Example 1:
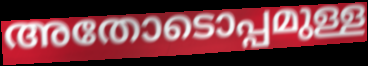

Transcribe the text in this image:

അതോടൊപ്പമുള്ള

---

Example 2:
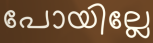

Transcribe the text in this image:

പോയില്ലേ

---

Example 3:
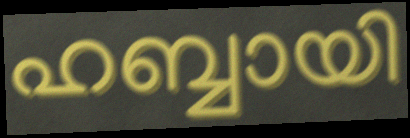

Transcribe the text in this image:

ഹബ്ബായി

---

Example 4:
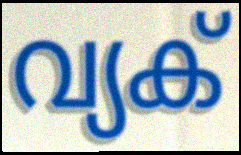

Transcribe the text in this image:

വ്യക്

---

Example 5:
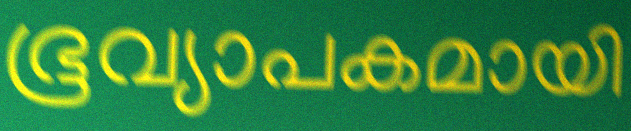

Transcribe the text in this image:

ഭൂവ്യാപകമായി